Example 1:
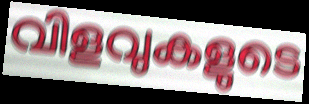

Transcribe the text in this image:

വിളവുകളുടെ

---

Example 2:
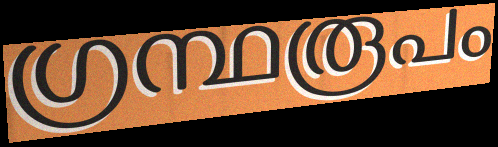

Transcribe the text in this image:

ഗ്രന്ഥരൂപം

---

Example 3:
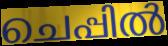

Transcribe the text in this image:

ചെപ്പിൽ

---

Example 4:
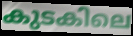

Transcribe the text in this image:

കുടകിലെ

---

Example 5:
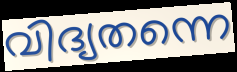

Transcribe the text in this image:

വിദ്യതന്നെ